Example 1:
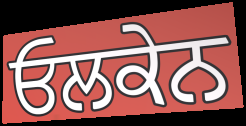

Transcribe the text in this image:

ਓਲਕੇਨ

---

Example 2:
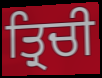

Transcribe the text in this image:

ਤ੍ਰਿਚੀ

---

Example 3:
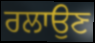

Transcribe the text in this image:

ਰਲਾਉਣ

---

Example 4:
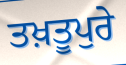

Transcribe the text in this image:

ਤਖ਼ਤੂਪੁਰੇ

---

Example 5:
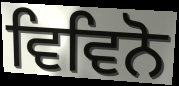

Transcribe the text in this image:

ਵਿਵਿਨੋ